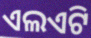
ଏଲଏଟି